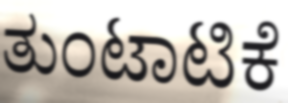
ತುಂಟಾಟಿಕೆ